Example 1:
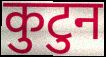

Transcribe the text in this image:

कुटुन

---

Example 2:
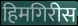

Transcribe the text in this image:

हिमगिरीस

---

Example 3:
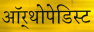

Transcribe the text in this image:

ऑर्थोपेडिस्ट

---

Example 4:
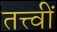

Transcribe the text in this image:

तत्त्वीं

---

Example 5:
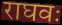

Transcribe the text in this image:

राघवः